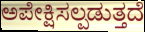
ಅಪೇಕ್ಷಿಸಲ್ಪಡುತ್ತದೆ